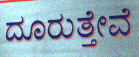
ದೂರುತ್ತೇವೆ